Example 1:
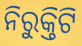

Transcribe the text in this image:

ନିରୁକ୍ତିଟି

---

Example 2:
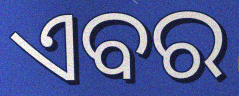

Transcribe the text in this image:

ଏବର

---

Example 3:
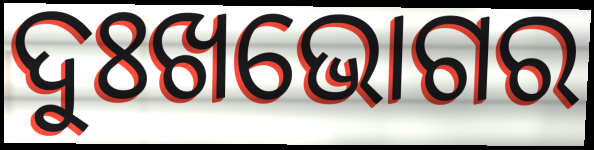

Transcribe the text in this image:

ଦୁଃଖଭୋଗର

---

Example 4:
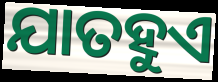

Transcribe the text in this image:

ଯାତହୁଏ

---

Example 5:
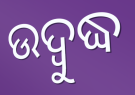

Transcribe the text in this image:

ଉଦ୍ବୁଦ୍ଧ